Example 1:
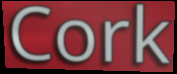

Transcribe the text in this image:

Cork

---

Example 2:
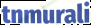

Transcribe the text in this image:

tnmurali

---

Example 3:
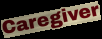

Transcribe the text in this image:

Caregiver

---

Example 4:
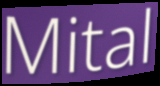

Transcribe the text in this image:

Mital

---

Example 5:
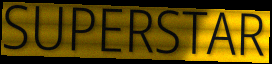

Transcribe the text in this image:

SUPERSTAR